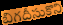
బిగదీసుకొని